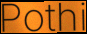
Pothi